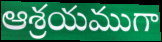
ఆశ్రయముగా